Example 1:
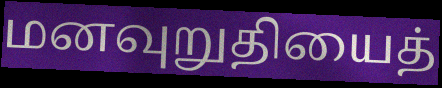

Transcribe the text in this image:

மனவுறுதியைத்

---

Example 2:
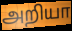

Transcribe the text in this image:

அறியா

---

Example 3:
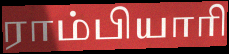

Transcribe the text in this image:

ராம்பியாரி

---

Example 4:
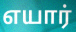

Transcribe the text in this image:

எயார்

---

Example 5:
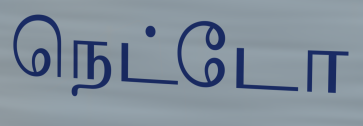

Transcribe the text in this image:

நெட்டோ